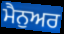
ਮੈਨੁਅਰ